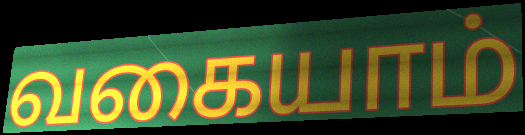
வகையாம்